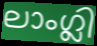
ലാംഗ്ലി